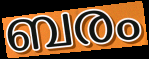
ബരം